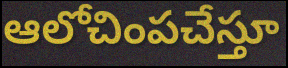
ఆలోచింపచేస్తూ